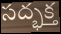
సద్భక్త